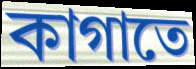
কাগাতে